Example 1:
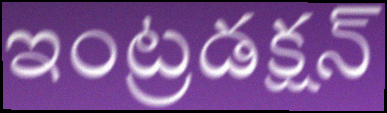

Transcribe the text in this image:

ఇంట్రడక్షన్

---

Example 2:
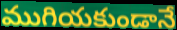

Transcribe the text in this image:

ముగియకుండానే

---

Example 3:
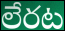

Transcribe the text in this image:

లేరట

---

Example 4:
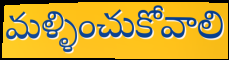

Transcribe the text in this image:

మళ్ళించుకోవాలి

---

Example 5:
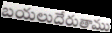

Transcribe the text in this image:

బయలుదేరుతాము